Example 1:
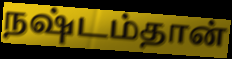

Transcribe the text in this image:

நஷ்டம்தான்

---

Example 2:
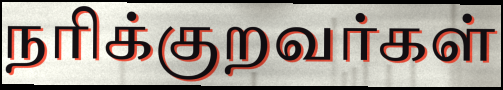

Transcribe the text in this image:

நரிக்குறவர்கள்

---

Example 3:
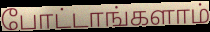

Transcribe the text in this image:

போட்டாங்களாம்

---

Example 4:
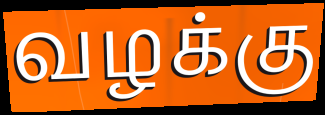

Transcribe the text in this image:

வழக்கு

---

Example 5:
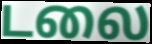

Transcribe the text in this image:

டலை